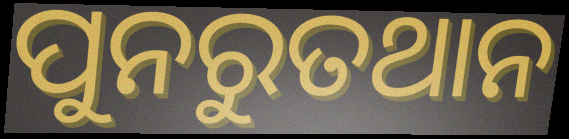
ପୁନରୁତଥାନ